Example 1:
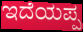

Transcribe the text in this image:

ಇದೆಯಪ್ಪ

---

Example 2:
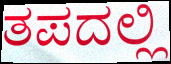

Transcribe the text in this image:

ತಪದಲ್ಲಿ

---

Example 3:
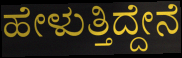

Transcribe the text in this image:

ಹೇಳುತ್ತಿದ್ದೇನೆ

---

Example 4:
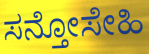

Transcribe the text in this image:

ಸನ್ತೋಸೇಹಿ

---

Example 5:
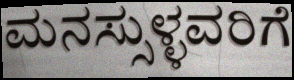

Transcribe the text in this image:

ಮನಸ್ಸುಳ್ಳವರಿಗೆ